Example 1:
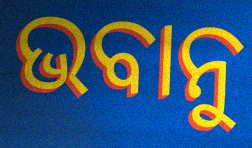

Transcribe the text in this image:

ଭବାନୁ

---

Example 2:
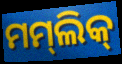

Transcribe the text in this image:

ମମ୍‌ଲିକ୍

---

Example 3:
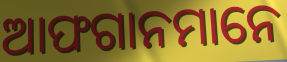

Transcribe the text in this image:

ଆଫଗାନମାନେ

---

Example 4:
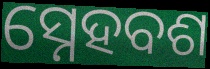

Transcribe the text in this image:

ସ୍ନେହବଶ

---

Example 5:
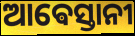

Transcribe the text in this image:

ଆଵେସ୍ତାନୀ